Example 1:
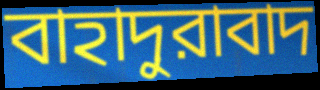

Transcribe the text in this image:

বাহাদুরাবাদ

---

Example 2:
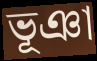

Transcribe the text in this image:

ভূঞা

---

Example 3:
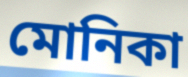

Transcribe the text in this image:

মোনিকা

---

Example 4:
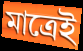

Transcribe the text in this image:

মাত্রেই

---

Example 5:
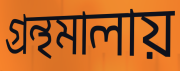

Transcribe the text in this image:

গ্রন্থমালায়